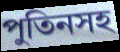
পুতিনসহ